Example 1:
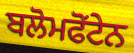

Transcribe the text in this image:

ਬਲੋਮਫੋਂਟੇਨ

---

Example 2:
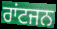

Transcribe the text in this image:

ਰਾਂਟਜਨ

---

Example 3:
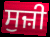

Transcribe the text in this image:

ਸੁਜ਼ੀ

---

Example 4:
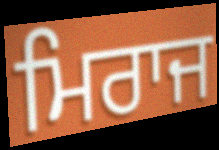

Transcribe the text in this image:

ਮਿਰਾਜ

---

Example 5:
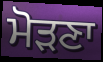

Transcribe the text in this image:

ਮੋੜਣਾ